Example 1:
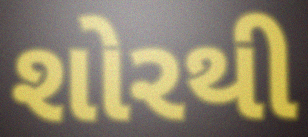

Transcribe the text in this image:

શોરથી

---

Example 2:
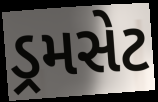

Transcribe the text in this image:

ડ્રમસેટ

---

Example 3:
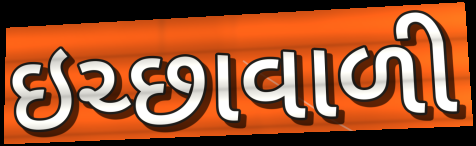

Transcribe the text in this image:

ઇચ્છાવાળી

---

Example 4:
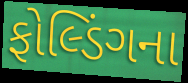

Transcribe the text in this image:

ફોલ્ડિંગના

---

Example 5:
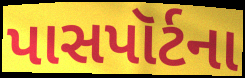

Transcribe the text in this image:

પાસપૉર્ટના